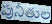
పునీతుల